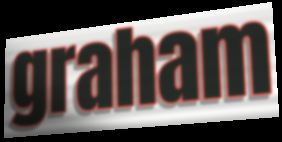
graham